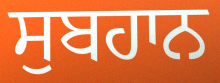
ਸੁਬਹਾਨ